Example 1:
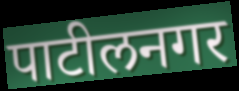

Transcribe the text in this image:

पाटीलनगर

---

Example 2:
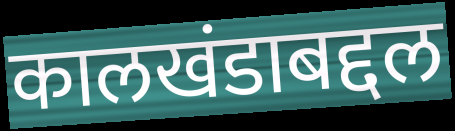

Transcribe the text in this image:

कालखंडाबद्दल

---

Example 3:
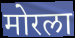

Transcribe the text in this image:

मोरला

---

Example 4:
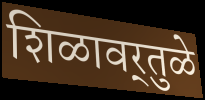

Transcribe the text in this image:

शिळावर्तुळे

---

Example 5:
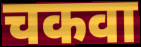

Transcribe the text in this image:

चकवा